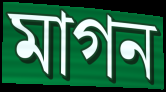
মাগন